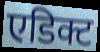
एडिक्ट